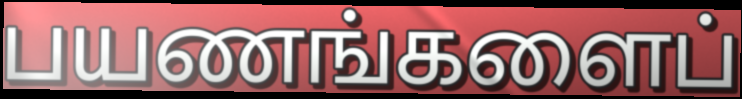
பயணங்களைப்